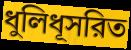
ধুলিধূসরিত